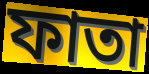
ফাতা